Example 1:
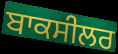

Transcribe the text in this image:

ਬਾਕਸੀਲਰ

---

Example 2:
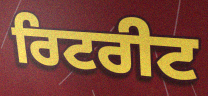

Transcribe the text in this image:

ਰਿਟਰੀਟ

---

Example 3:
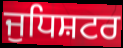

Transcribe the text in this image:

ਜੁਧਿਸ਼ਟਰ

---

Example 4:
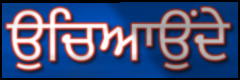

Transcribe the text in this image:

ਉਚਿਆਉਂਦੇ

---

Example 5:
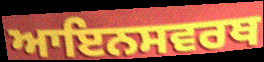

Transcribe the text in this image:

ਆਇਨਸਵਰਥ